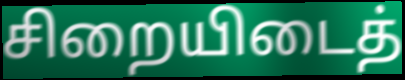
சிறையிடைத்